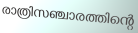
രാത്രിസഞ്ചാരത്തിന്റെ